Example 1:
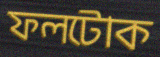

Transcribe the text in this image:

ফলটোক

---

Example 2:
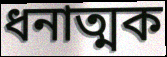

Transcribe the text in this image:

ধনাত্মক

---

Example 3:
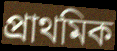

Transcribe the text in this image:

প্ৰাথমিক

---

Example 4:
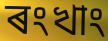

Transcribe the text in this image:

ৰংখাং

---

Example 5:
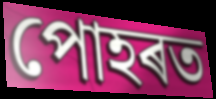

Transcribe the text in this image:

পোহৰত